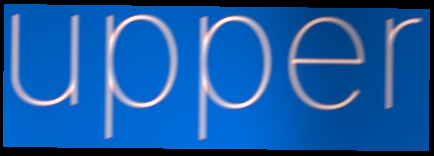
upper